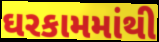
ઘરકામમાંથી